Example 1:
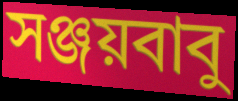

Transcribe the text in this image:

সঞ্জয়বাবু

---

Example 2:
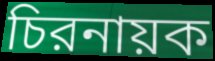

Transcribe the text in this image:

চিরনায়ক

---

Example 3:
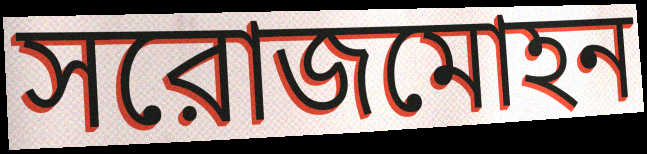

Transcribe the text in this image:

সরোজমোহন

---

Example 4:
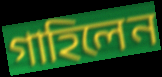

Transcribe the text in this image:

গাহিলেন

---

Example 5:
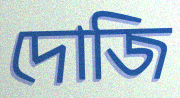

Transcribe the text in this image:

দোজি